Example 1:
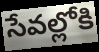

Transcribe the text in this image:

సేవల్లోకి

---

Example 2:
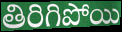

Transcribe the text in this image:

తిరిగిపోయి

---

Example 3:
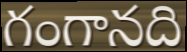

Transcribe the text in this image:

గంగానది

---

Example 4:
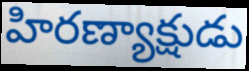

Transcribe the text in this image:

హిరణ్యాక్షుడు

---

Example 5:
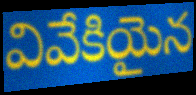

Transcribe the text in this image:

వివేకియైన